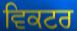
ਵਿਕਟਰ